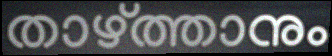
താഴ്ത്താനും